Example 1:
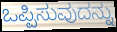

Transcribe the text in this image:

ಒಪ್ಪಿಸುವುದನ್ನು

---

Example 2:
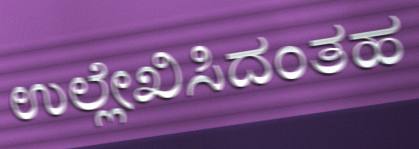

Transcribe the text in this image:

ಉಲ್ಲೇಖಿಸಿದಂತಹ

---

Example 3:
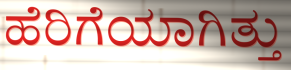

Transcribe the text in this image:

ಹೆರಿಗೆಯಾಗಿತ್ತು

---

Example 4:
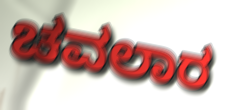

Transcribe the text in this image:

ಚವಲಾರ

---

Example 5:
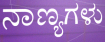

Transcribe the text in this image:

ನಾಣ್ಯಗಳು